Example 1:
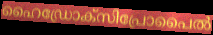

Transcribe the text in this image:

ഹൈഡ്രോക്സിപ്രോപൈൽ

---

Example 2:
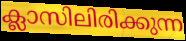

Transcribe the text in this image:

ക്ലാസിലിരിക്കുന്ന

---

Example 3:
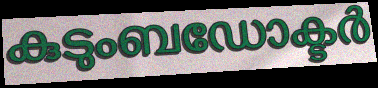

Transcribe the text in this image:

കുടുംബഡോക്ടർ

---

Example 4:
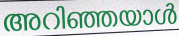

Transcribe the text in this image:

അറിഞ്ഞയാൾ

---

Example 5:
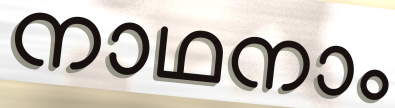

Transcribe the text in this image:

നാഥനാം